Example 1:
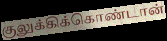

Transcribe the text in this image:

குலுக்கிக்கொண்டான்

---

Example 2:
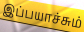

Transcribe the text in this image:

இப்பயாச்சும்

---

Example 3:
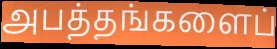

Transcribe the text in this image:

அபத்தங்களைப்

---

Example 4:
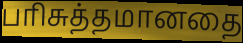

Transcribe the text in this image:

பரிசுத்தமானதை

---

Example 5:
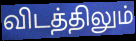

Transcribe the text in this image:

விடத்திலும்